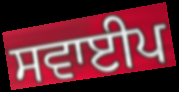
ਸਵਾਈਪ